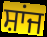
ਸ਼ਾਂਜ